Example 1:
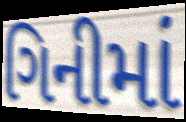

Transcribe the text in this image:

ગિનીમાં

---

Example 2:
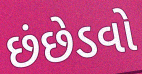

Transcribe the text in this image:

છંછેડવો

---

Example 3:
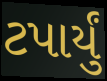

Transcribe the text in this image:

ટપાર્યું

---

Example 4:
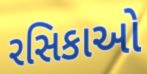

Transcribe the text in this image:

રસિકાઓ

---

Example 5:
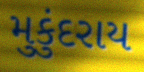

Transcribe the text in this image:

મુકુંદરાય